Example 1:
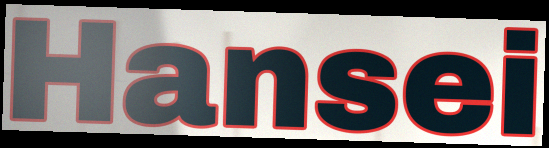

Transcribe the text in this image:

Hansei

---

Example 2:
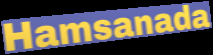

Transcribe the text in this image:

Hamsanada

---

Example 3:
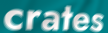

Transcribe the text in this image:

crates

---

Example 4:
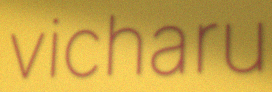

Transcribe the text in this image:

vicharu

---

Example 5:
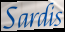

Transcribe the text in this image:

Sardis